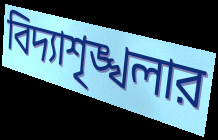
বিদ্যাশৃঙ্খলার